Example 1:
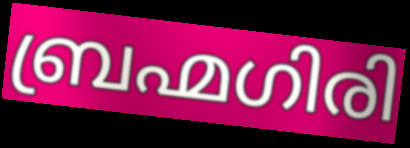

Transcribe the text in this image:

ബ്രഹ്മഗിരി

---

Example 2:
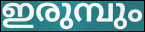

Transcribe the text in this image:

ഇരുമ്പും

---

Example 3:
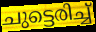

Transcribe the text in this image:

ചുട്ടെരിച്ച്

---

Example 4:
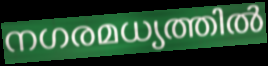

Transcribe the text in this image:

നഗരമധ്യത്തിൽ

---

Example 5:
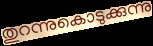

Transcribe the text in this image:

തുറന്നുകൊടുക്കുന്നു